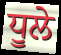
ਧੂਲੇ